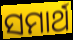
ସମାର୍ଥ